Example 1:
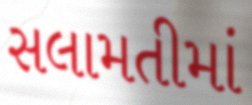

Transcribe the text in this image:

સલામતીમાં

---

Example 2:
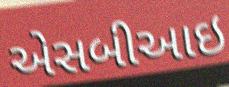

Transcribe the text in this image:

એસબીઆઇ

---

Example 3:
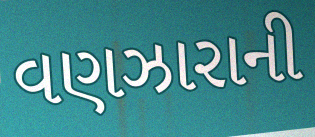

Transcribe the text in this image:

વણઝારાની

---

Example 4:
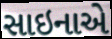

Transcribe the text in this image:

સાઇનાએ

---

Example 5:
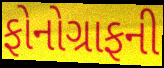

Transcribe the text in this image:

ફોનોગ્રાફની